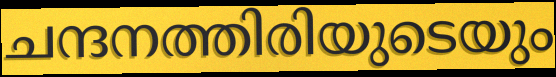
ചന്ദനത്തിരിയുടെയും